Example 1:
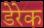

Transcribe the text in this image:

डेरेक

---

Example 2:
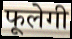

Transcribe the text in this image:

फूलेगी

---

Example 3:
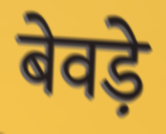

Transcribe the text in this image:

बेवड़े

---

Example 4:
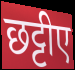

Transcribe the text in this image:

छट्टीए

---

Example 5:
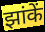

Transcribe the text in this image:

झांकें